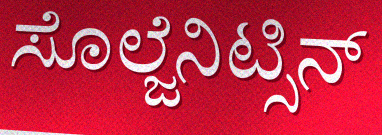
ಸೊಲ್ಜೆನಿಟ್ಸಿನ್